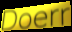
Doerr